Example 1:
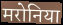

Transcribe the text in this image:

मरोनिया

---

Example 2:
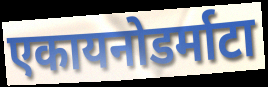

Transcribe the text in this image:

एकायनोडर्माटा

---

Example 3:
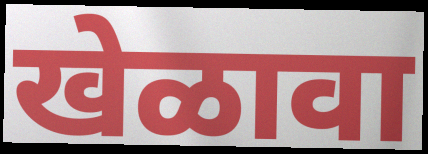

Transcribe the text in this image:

खेळावा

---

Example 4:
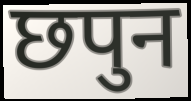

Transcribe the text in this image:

छपुन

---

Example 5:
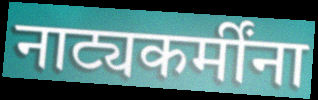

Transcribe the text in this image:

नाट्यकर्मींना